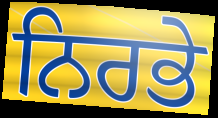
ਨਿਰਭੇ